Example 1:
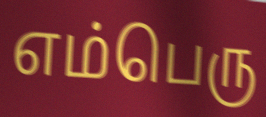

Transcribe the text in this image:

எம்பெரு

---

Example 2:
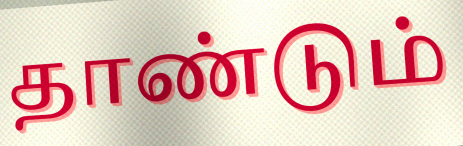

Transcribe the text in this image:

தாண்டும்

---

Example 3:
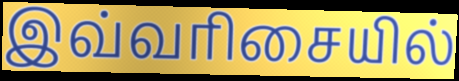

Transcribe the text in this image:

இவ்வரிசையில்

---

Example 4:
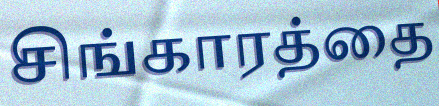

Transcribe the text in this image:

சிங்காரத்தை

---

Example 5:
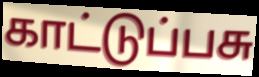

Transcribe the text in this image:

காட்டுப்பசு